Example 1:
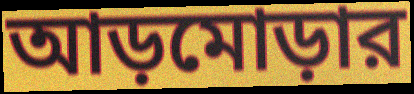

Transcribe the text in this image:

আড়মোড়ার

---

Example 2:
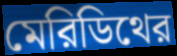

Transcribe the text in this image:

মেরিডিথের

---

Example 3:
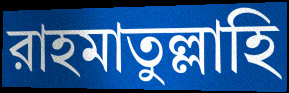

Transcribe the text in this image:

রাহমাতুল্লাহি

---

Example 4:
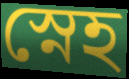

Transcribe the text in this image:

স্নেহ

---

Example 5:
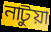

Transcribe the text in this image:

নাটুয়া